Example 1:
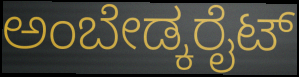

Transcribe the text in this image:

ಅಂಬೇಡ್ಕರೈಟ್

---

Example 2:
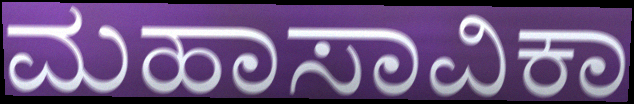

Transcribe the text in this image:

ಮಹಾಸಾವಿಕಾ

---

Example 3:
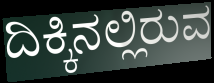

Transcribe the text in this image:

ದಿಕ್ಕಿನಲ್ಲಿರುವ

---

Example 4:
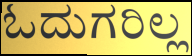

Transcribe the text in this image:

ಓದುಗರಿಲ್ಲ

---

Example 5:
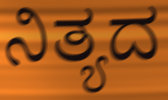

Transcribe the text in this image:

ನಿತ್ಯದ